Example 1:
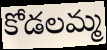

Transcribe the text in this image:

కోడలమ్మ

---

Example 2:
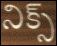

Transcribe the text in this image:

నిక్స్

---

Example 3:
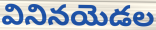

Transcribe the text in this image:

వినినయెడల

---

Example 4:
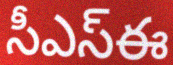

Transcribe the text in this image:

సీఎస్ఈ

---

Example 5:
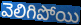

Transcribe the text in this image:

వెలిగిపోయి